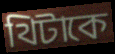
থিটাকে